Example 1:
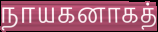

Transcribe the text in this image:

நாயகனாகத்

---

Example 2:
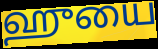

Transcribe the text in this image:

ஹுயை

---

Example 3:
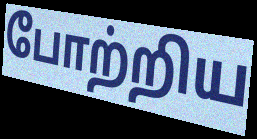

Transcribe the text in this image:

போற்றிய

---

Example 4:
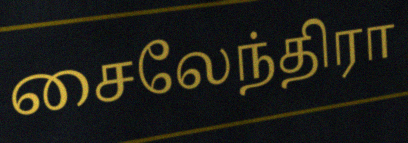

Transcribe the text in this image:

சைலேந்திரா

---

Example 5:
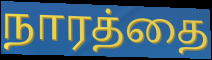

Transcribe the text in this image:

நாரத்தை